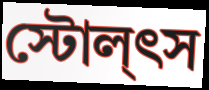
স্টোল্ৎস